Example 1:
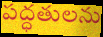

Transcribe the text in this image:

పద్ధతులను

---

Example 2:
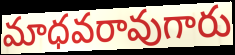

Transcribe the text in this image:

మాధవరావుగారు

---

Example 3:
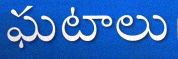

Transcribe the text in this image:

ఘటాలు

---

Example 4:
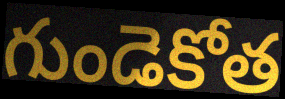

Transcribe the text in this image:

గుండెకోత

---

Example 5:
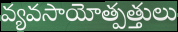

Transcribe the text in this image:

వ్యవసాయోత్పత్తులు